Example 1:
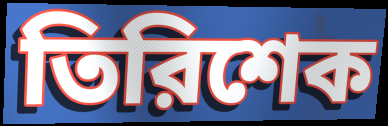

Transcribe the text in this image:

তিরিশেক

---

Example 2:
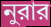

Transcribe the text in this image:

নুরার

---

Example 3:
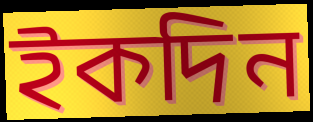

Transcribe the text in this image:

ইকদিন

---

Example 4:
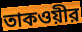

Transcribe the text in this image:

তাকওয়ীর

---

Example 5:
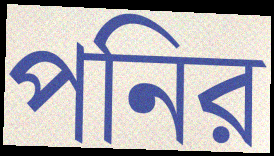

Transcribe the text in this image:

পনির